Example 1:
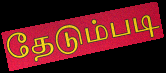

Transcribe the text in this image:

தேடும்படி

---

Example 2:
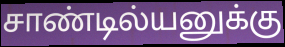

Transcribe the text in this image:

சாண்டில்யனுக்கு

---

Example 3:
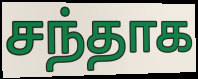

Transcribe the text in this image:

சந்தாக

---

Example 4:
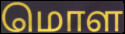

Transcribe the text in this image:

மொள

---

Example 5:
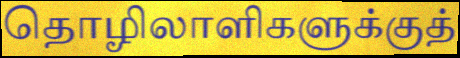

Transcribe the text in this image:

தொழிலாளிகளுக்குத்